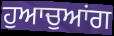
ਹੁਆਚੁਆਂਗ